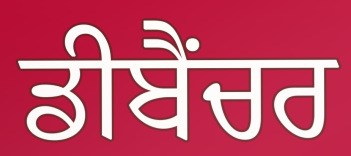
ਡੀਬੈਂਚਰ